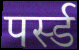
पर्स्ड